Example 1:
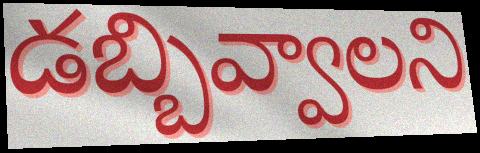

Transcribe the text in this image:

డబ్బివ్వాలని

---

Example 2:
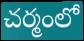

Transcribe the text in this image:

చర్మంలో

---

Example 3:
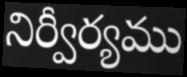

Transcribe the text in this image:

నిర్వీర్యము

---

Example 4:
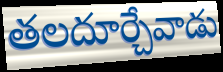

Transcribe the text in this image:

తలదూర్చేవాడు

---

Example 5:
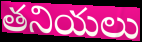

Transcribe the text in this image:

తనియలు